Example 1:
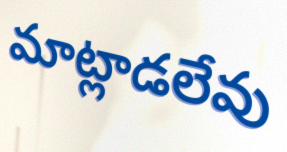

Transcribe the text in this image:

మాట్లాడలేవు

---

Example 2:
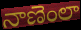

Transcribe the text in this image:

నాణెంలా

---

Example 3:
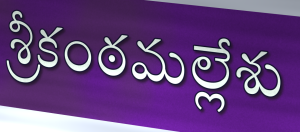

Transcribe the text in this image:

శ్రీకంఠమల్లేశు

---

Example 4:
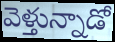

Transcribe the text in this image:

వెళ్తున్నాడో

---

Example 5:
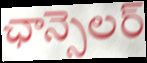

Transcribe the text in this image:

ఛాన్సెలర్